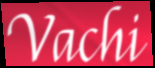
Vachi